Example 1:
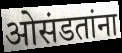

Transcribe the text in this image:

ओसंडतांना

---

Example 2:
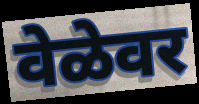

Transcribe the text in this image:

वेळेवर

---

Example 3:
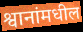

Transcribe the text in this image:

श्वानांमधील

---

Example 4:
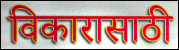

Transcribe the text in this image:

विकारासाठी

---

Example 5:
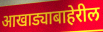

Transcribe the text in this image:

आखाड्याबाहेरील